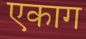
एकाग